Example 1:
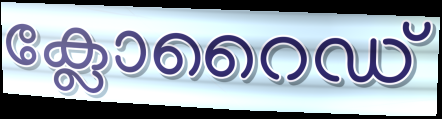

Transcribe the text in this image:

ക്ലോറൈഡ്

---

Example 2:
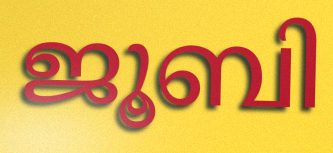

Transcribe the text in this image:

ജൂബി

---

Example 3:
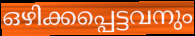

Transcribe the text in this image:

ഒഴിക്കപ്പെട്ടവനും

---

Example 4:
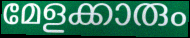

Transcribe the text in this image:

മേളക്കാരും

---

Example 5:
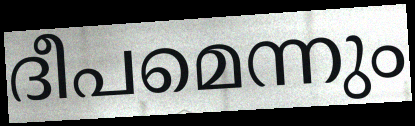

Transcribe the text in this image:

ദീപമെന്നും